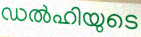
ഡൽഹിയുടെ